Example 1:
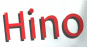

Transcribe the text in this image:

Hino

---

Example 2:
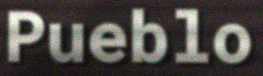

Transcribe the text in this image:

Pueblo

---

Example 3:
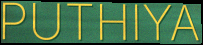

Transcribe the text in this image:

PUTHIYA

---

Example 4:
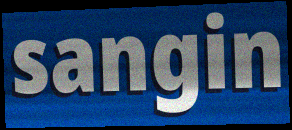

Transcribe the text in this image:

sangin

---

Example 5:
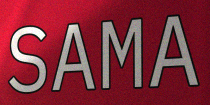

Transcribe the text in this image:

SAMA